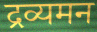
द्रव्यमन